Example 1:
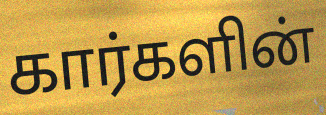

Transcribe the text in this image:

கார்களின்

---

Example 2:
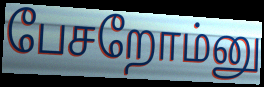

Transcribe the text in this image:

பேசறோம்னு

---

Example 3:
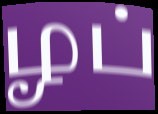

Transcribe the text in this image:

ழப்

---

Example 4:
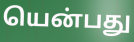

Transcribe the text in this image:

யென்பது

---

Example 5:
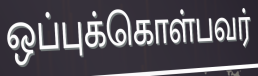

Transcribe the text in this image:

ஒப்புக்கொள்பவர்